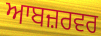
ਆਬਜ਼ਰਵਰ